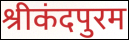
श्रीकंदपुरम